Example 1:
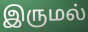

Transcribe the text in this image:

இருமல்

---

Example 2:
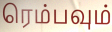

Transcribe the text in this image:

ரெம்பவும்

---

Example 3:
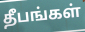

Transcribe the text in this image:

தீபங்கள்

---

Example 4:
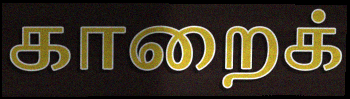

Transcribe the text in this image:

காறைக்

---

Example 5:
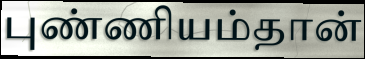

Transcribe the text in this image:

புண்ணியம்தான்